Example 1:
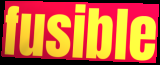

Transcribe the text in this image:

fusible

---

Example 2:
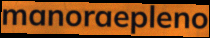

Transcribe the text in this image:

manoraepleno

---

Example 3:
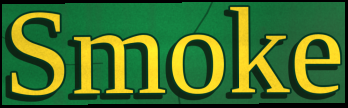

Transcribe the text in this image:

Smoke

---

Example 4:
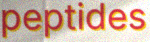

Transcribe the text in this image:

peptides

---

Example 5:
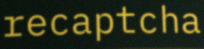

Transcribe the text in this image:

recaptcha